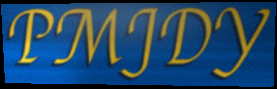
PMJDY